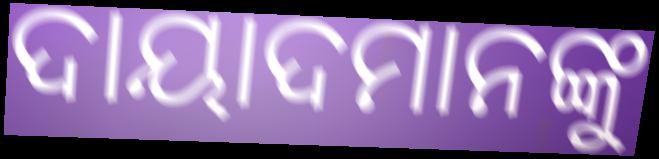
ଦାୟାଦମାନଙ୍କୁ